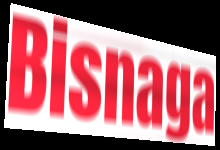
Bisnaga